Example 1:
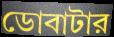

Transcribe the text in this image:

ডোবাটার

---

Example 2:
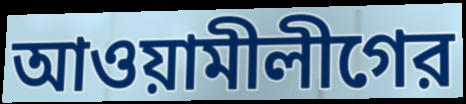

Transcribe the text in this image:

আওয়ামীলীগের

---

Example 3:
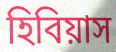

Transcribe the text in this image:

হিবিয়াস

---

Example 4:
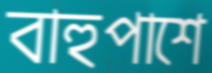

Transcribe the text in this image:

বাহুপাশে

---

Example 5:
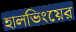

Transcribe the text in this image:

হালভিংয়ের